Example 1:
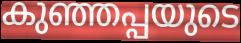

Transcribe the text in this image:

കുഞ്ഞപ്പയുടെ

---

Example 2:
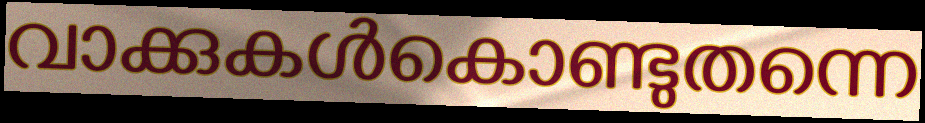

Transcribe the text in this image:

വാക്കുകൾകൊണ്ടുതന്നെ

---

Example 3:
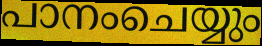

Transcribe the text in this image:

പാനംചെയ്യും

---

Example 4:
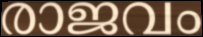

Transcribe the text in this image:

രാജവം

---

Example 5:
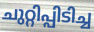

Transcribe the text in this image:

ചുറ്റിപ്പിടിച്ച